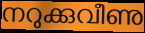
നറുക്കുവീണു